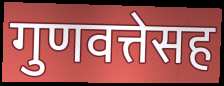
गुणवत्तेसह